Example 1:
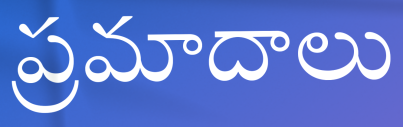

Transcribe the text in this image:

ప్రమాదాలు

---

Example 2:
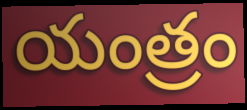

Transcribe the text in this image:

యంత్రం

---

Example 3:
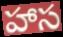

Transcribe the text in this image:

హాస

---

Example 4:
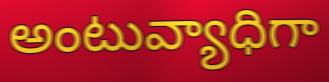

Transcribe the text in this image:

అంటువ్యాధిగా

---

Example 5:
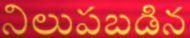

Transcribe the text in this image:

నిలుపబడిన